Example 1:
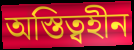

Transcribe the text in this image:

অস্তিত্বহীন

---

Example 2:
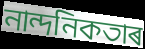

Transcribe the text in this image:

নান্দনিকতাৰ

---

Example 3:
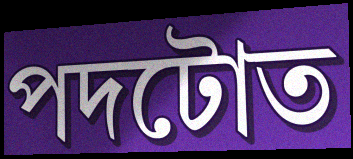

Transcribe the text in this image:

পদটোত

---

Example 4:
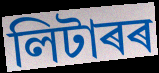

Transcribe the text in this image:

লিটাৰৰ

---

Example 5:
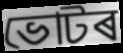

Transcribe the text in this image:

ভোটৰ